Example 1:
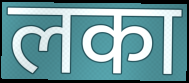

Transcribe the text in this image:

लका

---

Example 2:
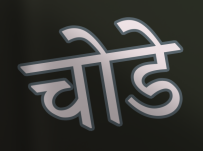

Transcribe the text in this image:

चोडे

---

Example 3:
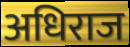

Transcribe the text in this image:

अधिराज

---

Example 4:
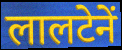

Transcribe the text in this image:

लालटेनें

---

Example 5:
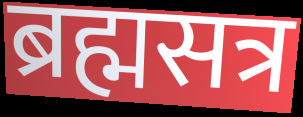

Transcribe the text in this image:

ब्रह्मसत्र